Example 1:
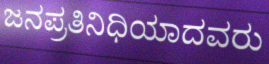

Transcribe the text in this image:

ಜನಪ್ರತಿನಿಧಿಯಾದವರು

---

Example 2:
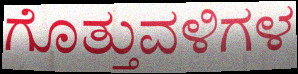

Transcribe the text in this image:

ಗೊತ್ತುವಳಿಗಳ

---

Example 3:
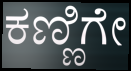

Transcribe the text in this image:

ಕಣ್ಣಿಗೇ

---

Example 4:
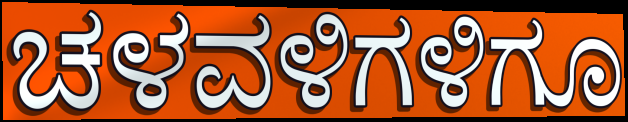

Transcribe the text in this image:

ಚಳವಳಿಗಳಿಗೂ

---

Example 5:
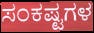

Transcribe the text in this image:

ಸಂಕಷ್ಟಗಳ